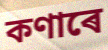
কণাৰে